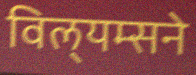
विल्यम्सने